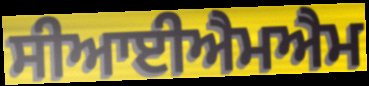
ਸੀਆਈਐਮਐਮ